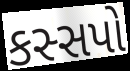
કસ્સપો